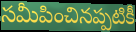
సమీపించినప్పటికీ